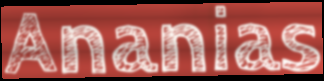
Ananias